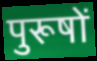
पुरूषों